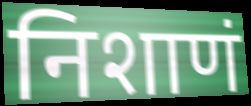
निशाणं